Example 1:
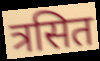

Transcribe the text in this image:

त्रसित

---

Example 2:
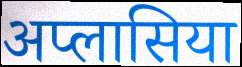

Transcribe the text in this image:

अप्लासिया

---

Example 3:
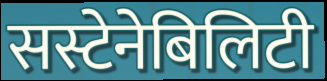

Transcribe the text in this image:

सस्टेनेबिलिटी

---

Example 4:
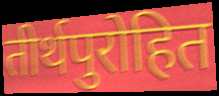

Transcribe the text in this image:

तीर्थपुरोहित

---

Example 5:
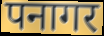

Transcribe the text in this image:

पनागर